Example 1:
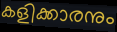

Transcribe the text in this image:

കളിക്കാരനും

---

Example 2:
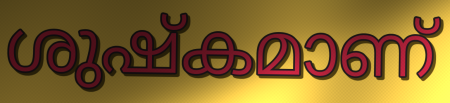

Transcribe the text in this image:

ശുഷ്കമാണ്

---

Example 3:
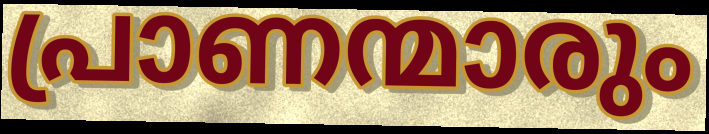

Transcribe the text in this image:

പ്രാണന്മാരും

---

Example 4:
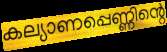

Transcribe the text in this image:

കല്യാണപ്പെണ്ണിന്റെ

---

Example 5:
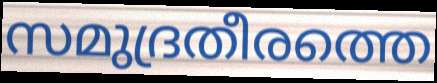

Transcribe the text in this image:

സമുദ്രതീരത്തെ